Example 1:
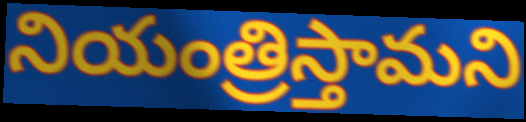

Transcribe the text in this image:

నియంత్రిస్తామని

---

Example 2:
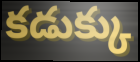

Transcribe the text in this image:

కడుక్కు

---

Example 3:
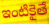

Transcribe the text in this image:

ఇంటికైతే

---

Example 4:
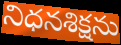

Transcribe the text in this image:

నిధనశిక్షను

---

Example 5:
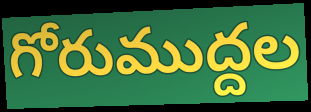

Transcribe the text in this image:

గోరుముద్దల